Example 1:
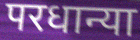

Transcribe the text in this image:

परधान्या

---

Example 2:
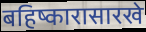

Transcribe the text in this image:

बहिष्कारासारखे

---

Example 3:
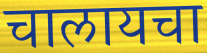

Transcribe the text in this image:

चालायचा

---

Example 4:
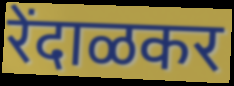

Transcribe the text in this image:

रेंदाळकर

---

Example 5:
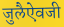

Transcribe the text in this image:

जुलैऐवजी